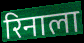
रिनाला